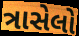
ત્રાસેલો